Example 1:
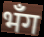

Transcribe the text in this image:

भँग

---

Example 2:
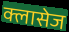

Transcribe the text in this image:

क्लासेज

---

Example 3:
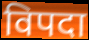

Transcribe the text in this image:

विपदा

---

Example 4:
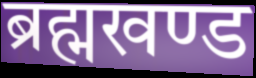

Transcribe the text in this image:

ब्रह्मखण्ड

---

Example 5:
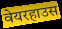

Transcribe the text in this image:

वेयरहाउस